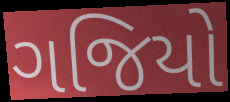
ગજિયો